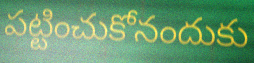
పట్టించుకోనందుకు